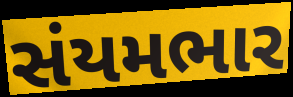
સંયમભાર